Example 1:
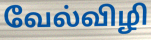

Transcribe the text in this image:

வேல்விழி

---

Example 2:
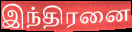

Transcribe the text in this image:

இந்திரனை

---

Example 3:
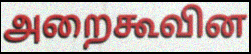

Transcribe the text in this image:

அறைகூவின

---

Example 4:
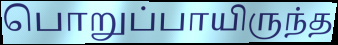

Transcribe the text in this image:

பொறுப்பாயிருந்த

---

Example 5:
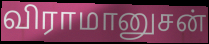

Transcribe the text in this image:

விராமானுசன்